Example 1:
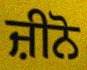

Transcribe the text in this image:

ਜ਼ੀਨੋ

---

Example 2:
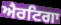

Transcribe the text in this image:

ਐਰਟਿਗਾ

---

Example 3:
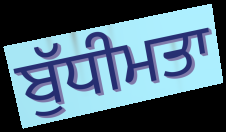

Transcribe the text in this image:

ਬੁੱਧੀਮਤਾ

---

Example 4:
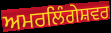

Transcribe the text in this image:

ਅਮਰਲਿੰਗੇਸ਼ਵਰ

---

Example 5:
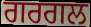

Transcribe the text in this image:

ਗਰਗਲ